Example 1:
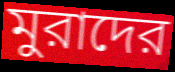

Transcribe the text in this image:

মুরাদের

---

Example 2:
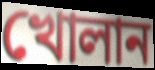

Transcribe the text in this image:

খোলান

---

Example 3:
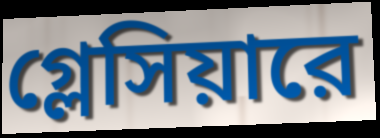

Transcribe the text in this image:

গ্লেসিয়ারে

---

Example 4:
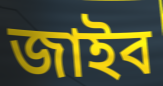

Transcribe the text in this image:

জাইব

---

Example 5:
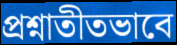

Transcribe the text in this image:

প্রশ্নাতীতভাবে